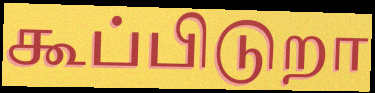
கூப்பிடுறா